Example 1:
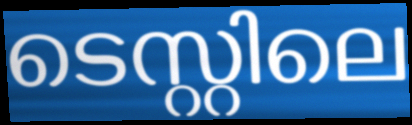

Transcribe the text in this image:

ടെസ്റ്റിലെ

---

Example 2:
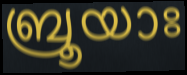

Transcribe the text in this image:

ബ്രൂയാഃ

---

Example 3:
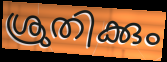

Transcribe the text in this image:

ശ്രുതിക്കും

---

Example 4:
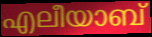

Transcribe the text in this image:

എലീയാബ്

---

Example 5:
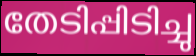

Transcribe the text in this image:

തേടിപ്പിടിച്ചു